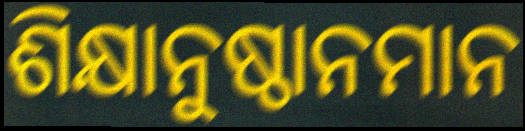
ଶିକ୍ଷାନୁଷ୍ଠାନମାନ